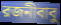
রজনীবাবু